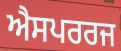
ਐਸਪਰਰਜ